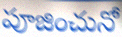
పూజించునో